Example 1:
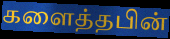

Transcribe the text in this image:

களைத்தபின்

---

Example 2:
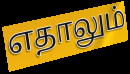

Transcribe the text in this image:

எதாலும்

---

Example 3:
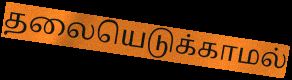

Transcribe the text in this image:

தலையெடுக்காமல்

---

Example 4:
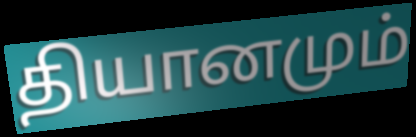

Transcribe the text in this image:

தியானமும்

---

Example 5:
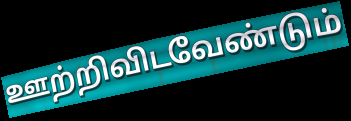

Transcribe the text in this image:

ஊற்றிவிடவேண்டும்